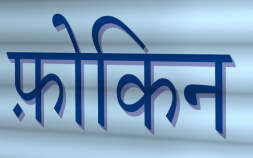
फ़ोकिन